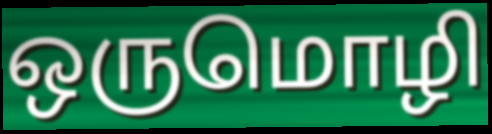
ஒருமொழி